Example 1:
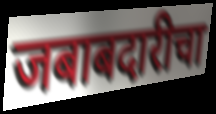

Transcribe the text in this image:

जबाबदारीचा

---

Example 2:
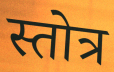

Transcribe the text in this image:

स्तोत्र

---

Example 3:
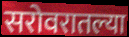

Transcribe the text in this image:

सरोवरातल्या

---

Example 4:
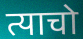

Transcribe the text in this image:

त्याचो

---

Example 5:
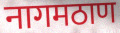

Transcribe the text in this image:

नागमठाण